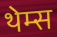
थेम्स